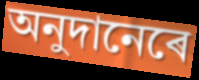
অনুদানেৰে